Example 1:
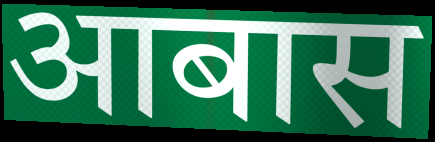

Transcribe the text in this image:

आबास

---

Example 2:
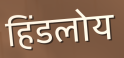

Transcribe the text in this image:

हिंडलोय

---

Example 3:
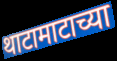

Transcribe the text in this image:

थाटामाटाच्या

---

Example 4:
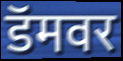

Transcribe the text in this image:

डॅमवर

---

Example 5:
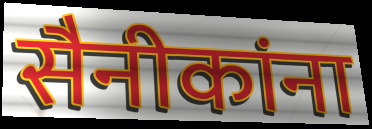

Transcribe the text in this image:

सैनीकांना